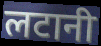
लटानी